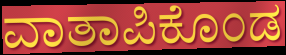
ವಾತಾಪಿಕೊಂಡ